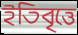
ইতিবৃত্তে